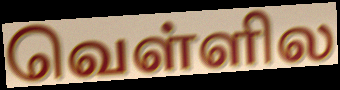
வெள்ளில